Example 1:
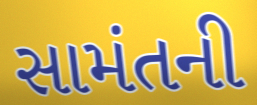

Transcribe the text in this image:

સામંતની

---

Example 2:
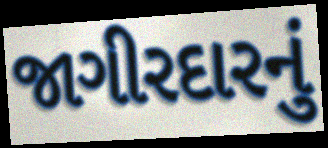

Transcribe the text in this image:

જાગીરદારનું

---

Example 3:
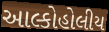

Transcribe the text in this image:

આલ્કોહોલીય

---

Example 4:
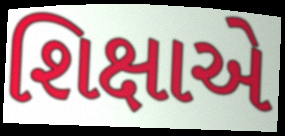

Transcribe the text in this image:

શિક્ષાએ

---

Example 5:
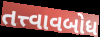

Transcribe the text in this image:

તત્ત્વાવબોધ